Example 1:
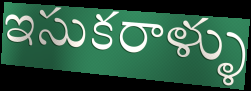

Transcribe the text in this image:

ఇసుకరాళ్ళు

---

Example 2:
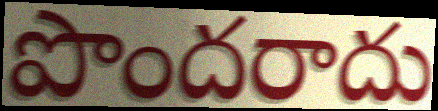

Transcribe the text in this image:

పొందరాదు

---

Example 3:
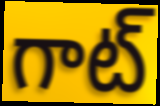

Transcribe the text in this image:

గాట్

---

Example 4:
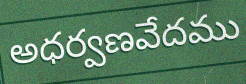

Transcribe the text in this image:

అధర్వణవేదము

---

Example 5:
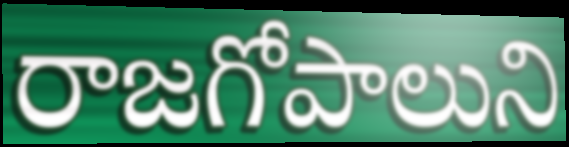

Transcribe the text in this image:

రాజగోపాలుని